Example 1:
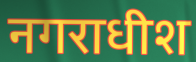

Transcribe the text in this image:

नगराधीश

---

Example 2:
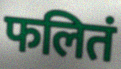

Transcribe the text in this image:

फलितं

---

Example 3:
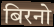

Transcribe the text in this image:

बिरनो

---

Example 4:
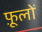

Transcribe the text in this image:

फ़ूलों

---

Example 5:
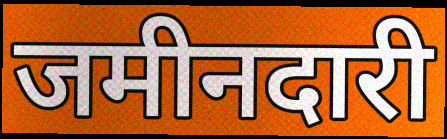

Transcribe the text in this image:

जमीनदारी